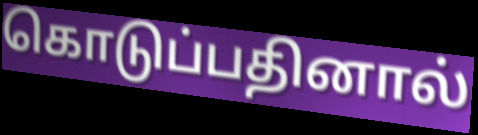
கொடுப்பதினால்